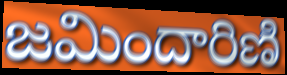
జమిందారిణి